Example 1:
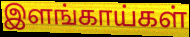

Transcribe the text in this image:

இளங்காய்கள்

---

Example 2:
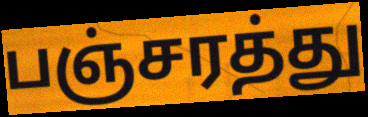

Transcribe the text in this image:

பஞ்சரத்து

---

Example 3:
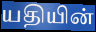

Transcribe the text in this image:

யதியின்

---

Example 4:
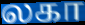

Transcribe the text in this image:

லகா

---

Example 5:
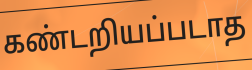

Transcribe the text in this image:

கண்டறியப்படாத